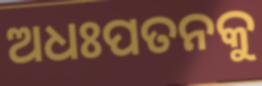
ଅଧଃପତନକୁ